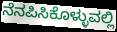
ನೆನಪಿಸಿಕೊಳ್ಳುವಲ್ಲಿ